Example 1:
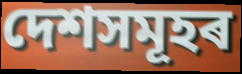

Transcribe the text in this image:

দেশসমূহৰ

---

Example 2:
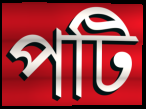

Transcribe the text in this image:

পটি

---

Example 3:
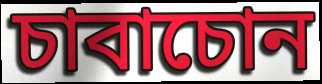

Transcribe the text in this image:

চাবাচোন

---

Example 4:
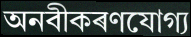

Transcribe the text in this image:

অনবীকৰণযোগ্য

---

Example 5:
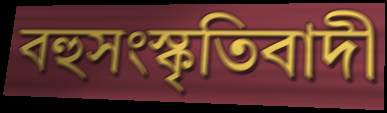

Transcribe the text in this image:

বহুসংস্কৃতিবাদী